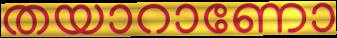
തയാറാണോ